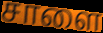
சாளை